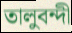
তালুবন্দী